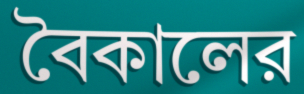
বৈকালের